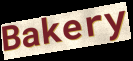
Bakery